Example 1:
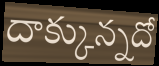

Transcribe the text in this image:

దాక్కున్నదో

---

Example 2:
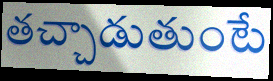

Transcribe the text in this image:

తచ్చాడుతుంటే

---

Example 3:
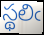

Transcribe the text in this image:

స్థలిఁ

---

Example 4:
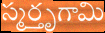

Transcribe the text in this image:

స్మర్తృగామి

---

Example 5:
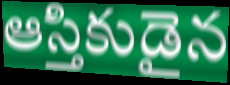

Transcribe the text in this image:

ఆస్తికుడైన